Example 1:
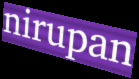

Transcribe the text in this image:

nirupan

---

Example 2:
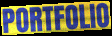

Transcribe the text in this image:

PORTFOLIO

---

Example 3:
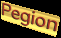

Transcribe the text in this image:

Pegion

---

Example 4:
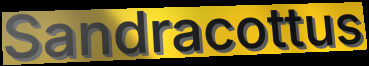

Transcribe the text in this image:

Sandracottus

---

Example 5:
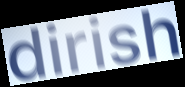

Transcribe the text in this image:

dirish